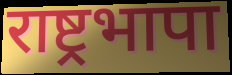
राष्ट्रभापा